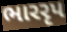
ભારરૃપ